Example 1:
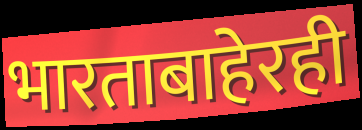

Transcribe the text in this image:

भारताबाहेरही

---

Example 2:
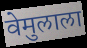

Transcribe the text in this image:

वेमुलाला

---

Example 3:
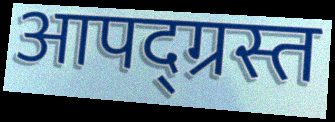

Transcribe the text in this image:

आपद्ग्रस्त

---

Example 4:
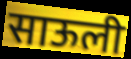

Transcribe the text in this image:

साऊली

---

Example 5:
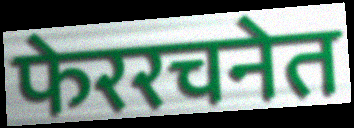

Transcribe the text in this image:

फेररचनेत